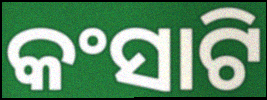
କଂସାଟି